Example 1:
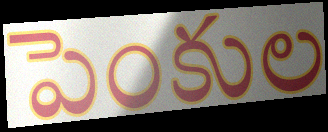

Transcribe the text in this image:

పెంకుల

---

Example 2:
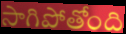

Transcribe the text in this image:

సాగిపోతోంది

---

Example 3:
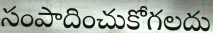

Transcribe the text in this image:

సంపాదించుకోగలదు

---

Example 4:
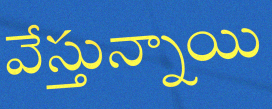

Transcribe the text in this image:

వేస్తున్నాయి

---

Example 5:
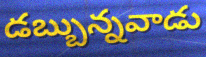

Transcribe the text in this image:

డబ్బున్నవాడు